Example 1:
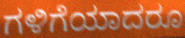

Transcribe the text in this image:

ಗಳಿಗೆಯಾದರೂ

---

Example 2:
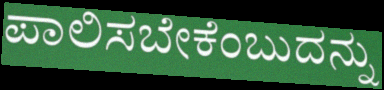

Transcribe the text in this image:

ಪಾಲಿಸಬೇಕೆಂಬುದನ್ನು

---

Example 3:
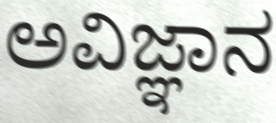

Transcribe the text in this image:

ಅವಿಜ್ಞಾನ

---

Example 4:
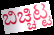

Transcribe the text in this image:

ಬಿಚ್ಚಿಟ್ಟ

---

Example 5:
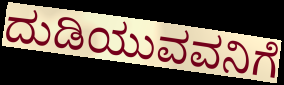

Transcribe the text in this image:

ದುಡಿಯುವವನಿಗೆ